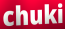
chuki